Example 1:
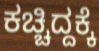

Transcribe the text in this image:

ಕಚ್ಚಿದ್ದಕ್ಕೆ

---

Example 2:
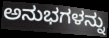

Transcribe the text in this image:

ಅನುಭಗಳನ್ನು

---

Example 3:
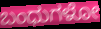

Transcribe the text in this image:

ಬಂಧುಗಳೋ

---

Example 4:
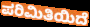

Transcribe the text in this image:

ಪರಿಮಿತಿಯಿದೆ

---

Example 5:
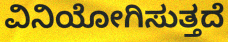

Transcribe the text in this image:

ವಿನಿಯೋಗಿಸುತ್ತದೆ